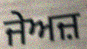
ਜੇਅਜ਼